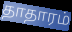
தாதாரம்